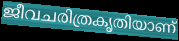
ജീവചരിത്രകൃതിയാണ്